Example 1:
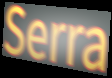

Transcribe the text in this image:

Serra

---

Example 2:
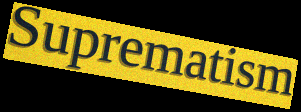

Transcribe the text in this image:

Suprematism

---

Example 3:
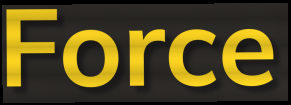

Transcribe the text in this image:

Force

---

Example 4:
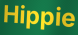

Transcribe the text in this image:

Hippie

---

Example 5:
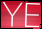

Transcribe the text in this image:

YE